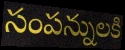
సంపన్నులకి